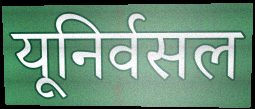
यूनिर्वसल